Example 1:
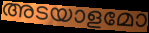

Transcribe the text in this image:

അടയാളമോ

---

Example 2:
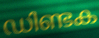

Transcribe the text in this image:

ഡിണ്ടക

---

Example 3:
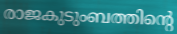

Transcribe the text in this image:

രാജകുടുംബത്തിന്റെ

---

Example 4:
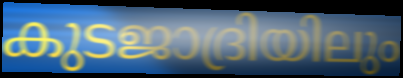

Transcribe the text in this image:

കുടജാദ്രിയിലും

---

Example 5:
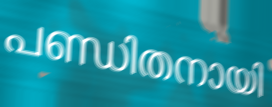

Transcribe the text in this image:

പണ്ഡിതനായി